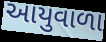
આયુવાળા